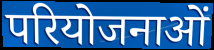
परियोजनाओं